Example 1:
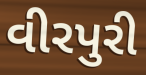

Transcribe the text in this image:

વીરપુરી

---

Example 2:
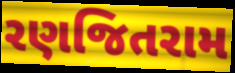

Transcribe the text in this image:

રણજિતરામ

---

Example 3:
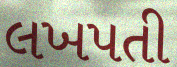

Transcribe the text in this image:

લખપતી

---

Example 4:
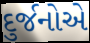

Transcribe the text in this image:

દુર્જનોએ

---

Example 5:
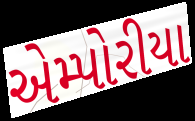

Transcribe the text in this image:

એમ્પોરીયા